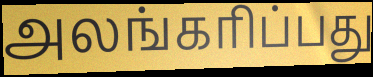
அலங்கரிப்பது